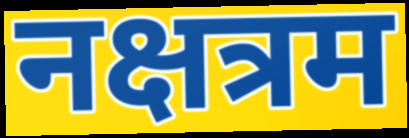
नक्षत्रम